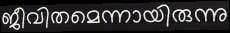
ജീവിതമെന്നായിരുന്നു